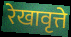
रेखावृत्ते